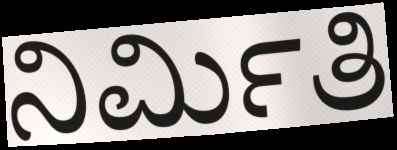
ನಿರ್ಮಿತಿ